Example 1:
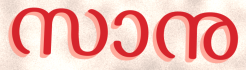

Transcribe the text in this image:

സാനു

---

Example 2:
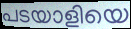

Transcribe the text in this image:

പടയാളിയെ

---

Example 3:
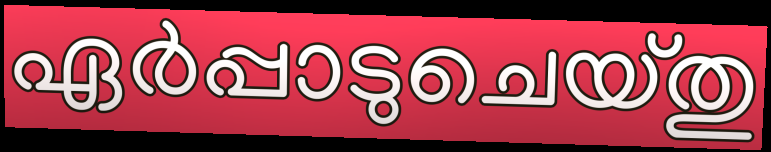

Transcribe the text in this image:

ഏർപ്പാടുചെയ്തു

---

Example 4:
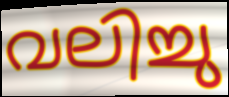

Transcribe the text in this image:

വലിച്ചു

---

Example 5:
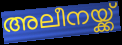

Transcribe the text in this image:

അലീനയ്ക്ക്